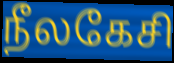
நீலகேசி